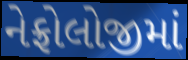
નેફ્રોલોજીમાં